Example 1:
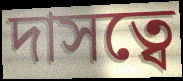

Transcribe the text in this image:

দাসত্বে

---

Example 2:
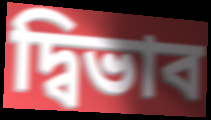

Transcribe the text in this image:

দ্বিভাব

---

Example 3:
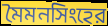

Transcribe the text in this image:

মৈমনসিংহের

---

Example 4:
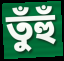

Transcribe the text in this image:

তুঁহুঁ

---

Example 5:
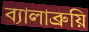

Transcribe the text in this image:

ব্যালাব্রুয়ি